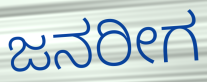
ಜನರೀಗ